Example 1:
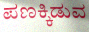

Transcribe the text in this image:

ಪಣಕ್ಕಿಡುವ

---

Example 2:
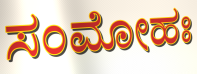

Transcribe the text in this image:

ಸಂಮೋಹಃ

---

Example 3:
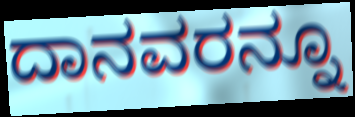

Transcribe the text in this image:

ದಾನವರನ್ನೂ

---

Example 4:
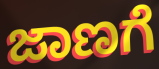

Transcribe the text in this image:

ಜಾಣಗೆ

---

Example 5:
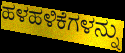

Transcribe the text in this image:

ಹಳಹಳಿಕೆಗಳನ್ನು